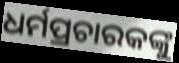
ଧର୍ମପ୍ରଚାରକଙ୍କୁ